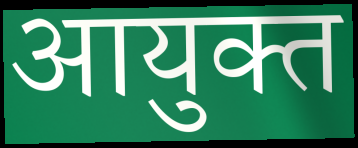
आयुक्‍त